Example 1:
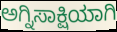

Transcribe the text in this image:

ಅಗ್ನಿಸಾಕ್ಷಿಯಾಗಿ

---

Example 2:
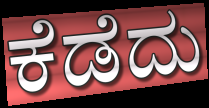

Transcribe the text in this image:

ಕೆಡೆದು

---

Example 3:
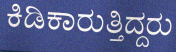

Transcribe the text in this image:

ಕಿಡಿಕಾರುತ್ತಿದ್ದರು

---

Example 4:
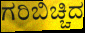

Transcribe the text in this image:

ಗರಿಬಿಚ್ಚಿದ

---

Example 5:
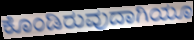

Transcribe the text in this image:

ಕೊಂಡಿರುವುದಾಗಿಯೂ